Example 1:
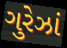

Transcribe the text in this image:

ગુરેઝાં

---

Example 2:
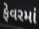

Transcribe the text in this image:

ફેવરમાં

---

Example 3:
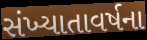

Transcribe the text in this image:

સંખ્યાતાવર્ષના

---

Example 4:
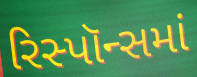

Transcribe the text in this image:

રિસ્પૉન્સમાં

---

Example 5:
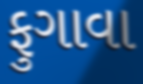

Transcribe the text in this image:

ફુગાવા